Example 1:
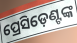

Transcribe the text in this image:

ପ୍ରେସିଡ଼େଣ୍ଟଙ୍କ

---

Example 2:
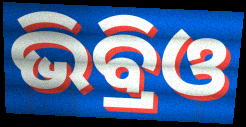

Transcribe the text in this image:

ଭିବ୍ରିଓ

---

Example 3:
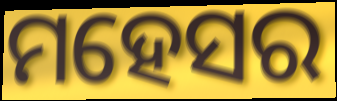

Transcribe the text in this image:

ମହେସର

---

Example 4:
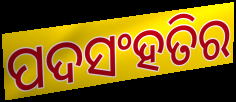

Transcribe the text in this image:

ପଦସଂହତିର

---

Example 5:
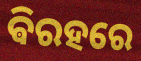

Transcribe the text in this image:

ଵିରହରେ